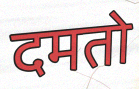
दमतो